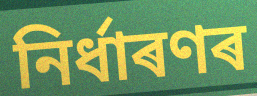
নিৰ্ধাৰণৰ